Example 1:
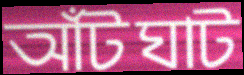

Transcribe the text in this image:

আঁটঘাট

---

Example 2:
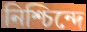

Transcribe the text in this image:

নিশ্চিন্দে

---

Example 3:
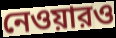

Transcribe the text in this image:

নেওয়ারও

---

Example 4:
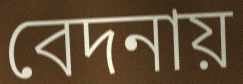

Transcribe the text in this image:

বেদনায়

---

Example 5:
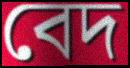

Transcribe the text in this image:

বেদ